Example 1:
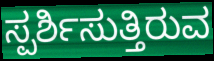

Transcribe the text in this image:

ಸ್ಪರ್ಶಿಸುತ್ತಿರುವ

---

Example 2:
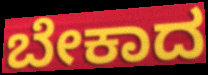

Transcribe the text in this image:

ಬೇಕಾದ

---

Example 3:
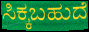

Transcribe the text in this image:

ಸಿಕ್ಕಬಹುದೆ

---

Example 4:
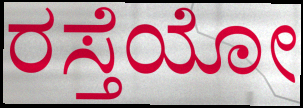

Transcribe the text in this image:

ರಸ್ತೆಯೋ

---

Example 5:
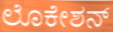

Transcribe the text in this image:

ಲೊಕೇಶನ್